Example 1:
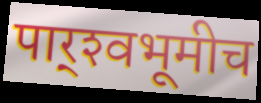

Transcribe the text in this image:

पार्श्वभूमीच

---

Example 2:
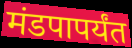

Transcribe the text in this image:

मंडपापर्यंत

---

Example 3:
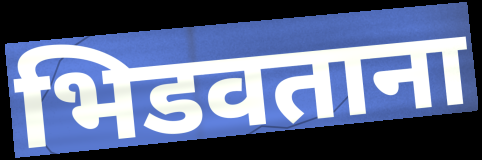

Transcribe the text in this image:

भिडवताना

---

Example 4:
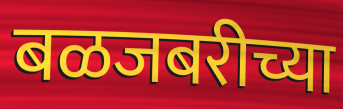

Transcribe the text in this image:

बळजबरीच्या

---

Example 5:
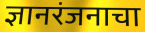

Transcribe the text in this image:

ज्ञानरंजनाचा